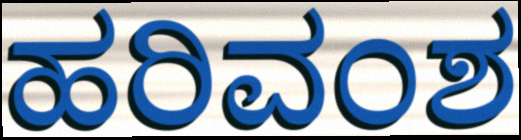
ಹರಿವಂಶ